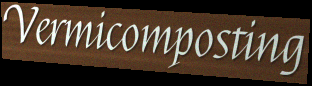
Vermicomposting